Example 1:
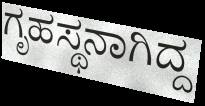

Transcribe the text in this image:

ಗೃಹಸ್ಥನಾಗಿದ್ದ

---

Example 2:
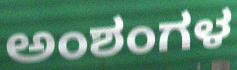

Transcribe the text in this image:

ಅಂಶಂಗಳ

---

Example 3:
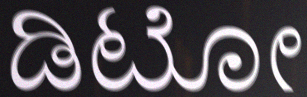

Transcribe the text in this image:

ಡಿಟೋ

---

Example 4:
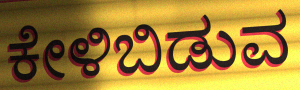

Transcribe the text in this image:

ಕೇಳಿಬಿಡುವ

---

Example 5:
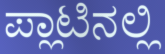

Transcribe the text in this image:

ಪ್ಲಾಟಿನಲ್ಲಿ